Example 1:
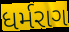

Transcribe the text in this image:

ધર્મરાગ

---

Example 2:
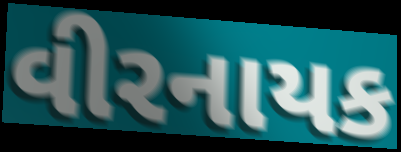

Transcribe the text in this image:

વીરનાયક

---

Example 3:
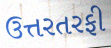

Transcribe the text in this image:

ઉત્તરતરફી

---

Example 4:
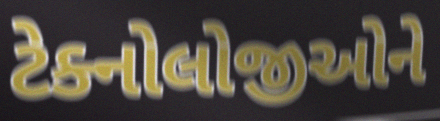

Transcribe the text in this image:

ટેક્નોલોજીઓને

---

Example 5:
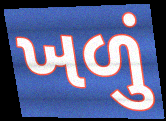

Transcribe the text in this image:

ખળું